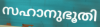
സഹാനുഭൂതി